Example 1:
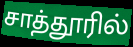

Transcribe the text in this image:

சாத்தூரில்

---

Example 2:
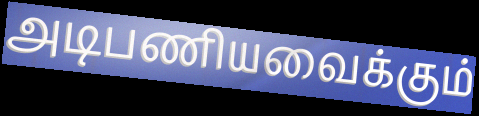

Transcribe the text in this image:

அடிபணியவைக்கும்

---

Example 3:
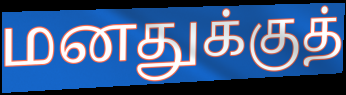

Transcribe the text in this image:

மனதுக்குத்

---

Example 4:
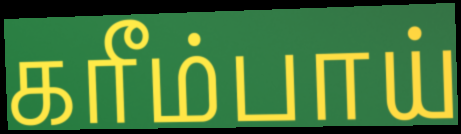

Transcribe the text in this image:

கரீம்பாய்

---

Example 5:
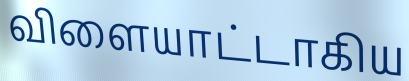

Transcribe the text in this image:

விளையாட்டாகிய